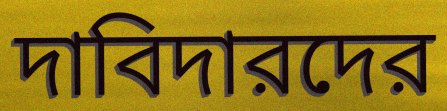
দাবিদারদের